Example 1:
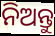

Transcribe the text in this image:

ନିଅନ୍ତୁ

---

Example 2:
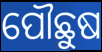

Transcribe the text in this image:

ପୌଛୁଷ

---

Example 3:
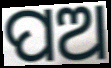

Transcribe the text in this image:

ପଅ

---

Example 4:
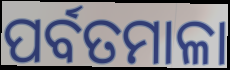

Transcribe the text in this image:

ପର୍ବତମାଳା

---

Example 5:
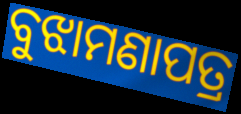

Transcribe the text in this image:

ବୁଝାମଣାପତ୍ର